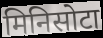
मिनिसोटा